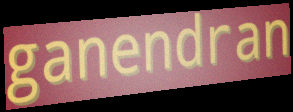
ganendran